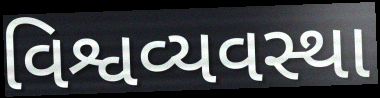
વિશ્વવ્યવસ્થા